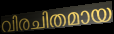
വിരചിതമായ